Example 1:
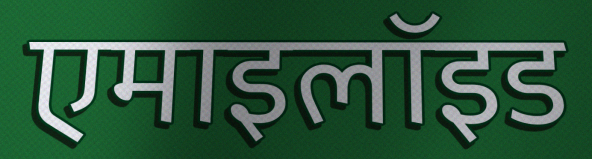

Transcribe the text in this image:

एमाइलॉइड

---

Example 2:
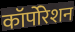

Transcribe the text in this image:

कॉर्पोरेशन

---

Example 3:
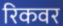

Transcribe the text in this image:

रिकवर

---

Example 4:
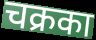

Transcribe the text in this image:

चक्रका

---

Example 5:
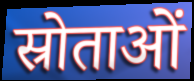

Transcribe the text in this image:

स्रोताओं